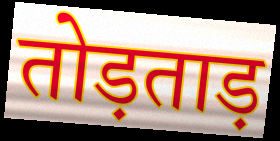
तोड़ताड़